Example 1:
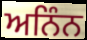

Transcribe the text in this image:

ਅਨਿੰਨ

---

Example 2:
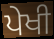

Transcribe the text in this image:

ਪੇਖੀ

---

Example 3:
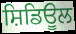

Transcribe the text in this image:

ਸ਼ਿਡਿਊਲ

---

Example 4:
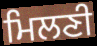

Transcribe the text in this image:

ਮਿਲਣੀ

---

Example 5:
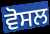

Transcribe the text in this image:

ਵੋਸਲ